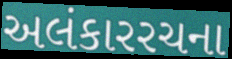
અલંકારરચના